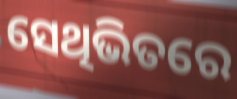
ସେଥିଭିତରେ